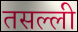
तसल्‍ली